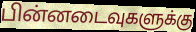
பின்னடைவுகளுக்கு